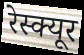
रेस्क्यूर